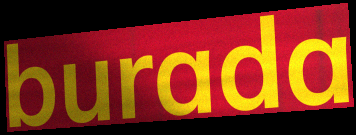
burada